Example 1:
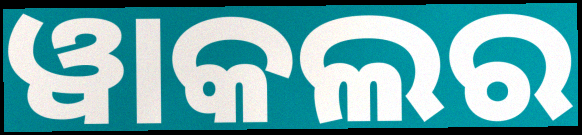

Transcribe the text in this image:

ୱାକଲର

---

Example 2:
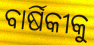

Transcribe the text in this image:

ବାର୍ଷିକୀକୁ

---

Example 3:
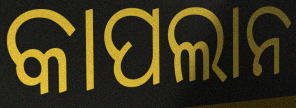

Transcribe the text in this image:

କାପଲାନ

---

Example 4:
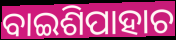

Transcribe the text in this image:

ବାଇଶିପାହାଚ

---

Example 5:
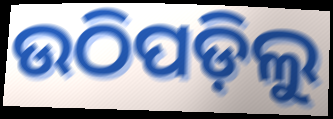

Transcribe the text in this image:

ଉଠିପଡ଼ିଲୁ